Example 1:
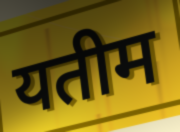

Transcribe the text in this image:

यतीम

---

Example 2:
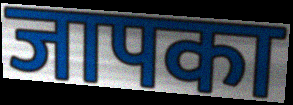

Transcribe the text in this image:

जापका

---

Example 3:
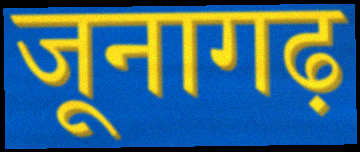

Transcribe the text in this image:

जूनागढ़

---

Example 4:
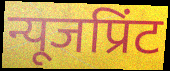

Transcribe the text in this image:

न्यूजप्रिंट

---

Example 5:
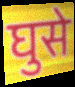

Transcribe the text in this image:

घुसे